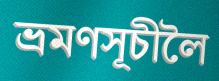
ভ্ৰমণসূচীলৈ